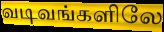
வடிவங்களிலே